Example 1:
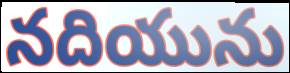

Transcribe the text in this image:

నదియును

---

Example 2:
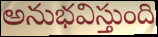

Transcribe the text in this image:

అనుభవిస్తుంది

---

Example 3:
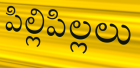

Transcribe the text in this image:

పిల్లిపిల్లలు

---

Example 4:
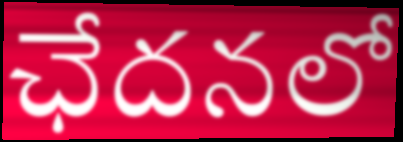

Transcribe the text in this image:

ఛేదనలో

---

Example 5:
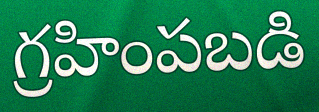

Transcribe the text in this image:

గ్రహింపబడి